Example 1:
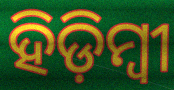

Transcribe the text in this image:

ହିଡ଼ିମ୍ବୀ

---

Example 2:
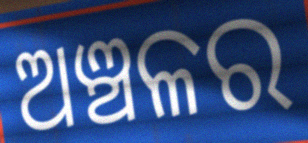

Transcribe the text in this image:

ଅଞ୍ଚଳର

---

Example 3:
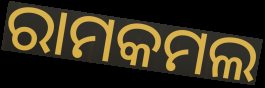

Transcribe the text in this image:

ରାମକମଲ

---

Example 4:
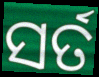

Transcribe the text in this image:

ସର୍ତ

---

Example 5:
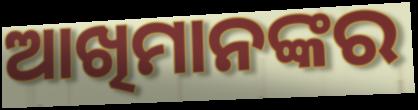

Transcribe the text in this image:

ଆଖିମାନଙ୍କର